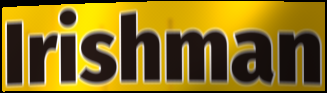
Irishman